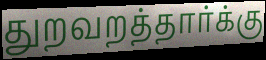
துறவறத்தார்க்கு